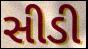
સીડી